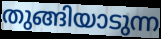
തുങ്ങിയാടുന്ന